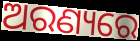
ଅରଣ୍ୟରେ